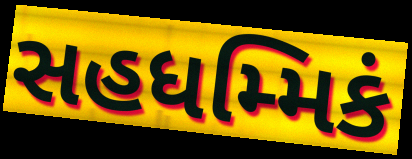
સહધમ્મિકં